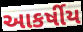
આકર્ષીય